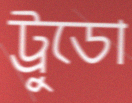
ট্রুডো